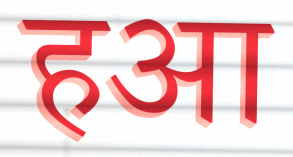
हआ